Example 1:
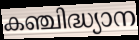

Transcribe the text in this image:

കഞ്ചിദ്ധ്യാന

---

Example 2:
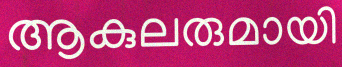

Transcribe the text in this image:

ആകുലരുമായി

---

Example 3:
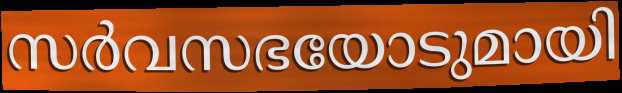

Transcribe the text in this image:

സർവസഭയോടുമായി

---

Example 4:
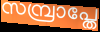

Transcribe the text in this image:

സമ്പ്രാപ്തേ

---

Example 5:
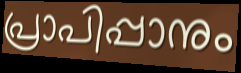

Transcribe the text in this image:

പ്രാപിപ്പാനും